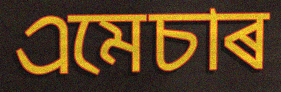
এমেচাৰ